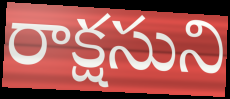
రాక్షసుని